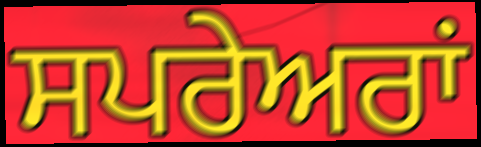
ਸਪਰੇਅਰਾਂ